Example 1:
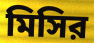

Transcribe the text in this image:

মিসির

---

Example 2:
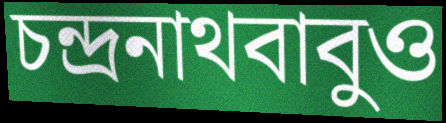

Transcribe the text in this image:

চন্দ্রনাথবাবুও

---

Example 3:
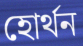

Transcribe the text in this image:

হোর্থন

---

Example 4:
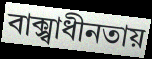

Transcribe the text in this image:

বাক্স্বাধীনতায়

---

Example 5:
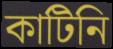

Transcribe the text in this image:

কাটিনি